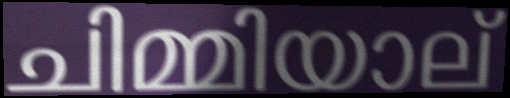
ചിമ്മിയാല്